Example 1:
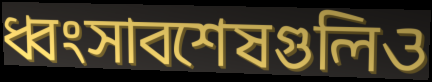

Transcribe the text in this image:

ধ্বংসাবশেষগুলিও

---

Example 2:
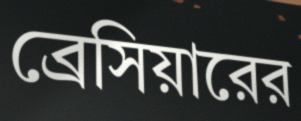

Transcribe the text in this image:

ব্রেসিয়ারের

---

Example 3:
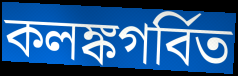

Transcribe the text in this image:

কলঙ্কগর্বিত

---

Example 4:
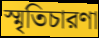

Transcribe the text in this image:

স্মৃতিচারণা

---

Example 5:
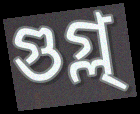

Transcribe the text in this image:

গুগ্ল্